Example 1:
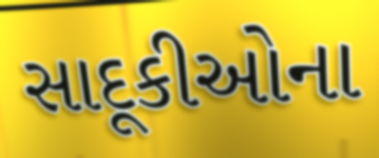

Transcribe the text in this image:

સાદૂકીઓના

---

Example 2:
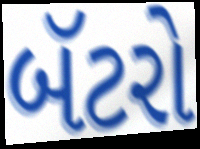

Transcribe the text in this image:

બૅટરો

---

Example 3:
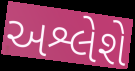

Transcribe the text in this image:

અશ્લેશે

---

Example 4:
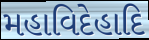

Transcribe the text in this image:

મહાવિદેહાદિ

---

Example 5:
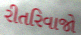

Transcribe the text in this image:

રીતરિવાજો